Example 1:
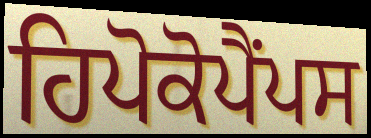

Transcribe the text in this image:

ਹਿਪੋਕੋਪੈਂਪਸ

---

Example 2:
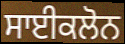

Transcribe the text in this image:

ਸਾਈਕਲੋਨ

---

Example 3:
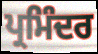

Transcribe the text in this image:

ਪ੍ਰਮਿੰਦਰ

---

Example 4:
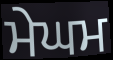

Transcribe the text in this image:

ਮੇਘਮ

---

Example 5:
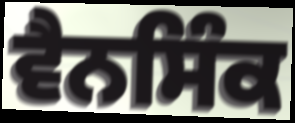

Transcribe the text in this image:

ਵੈਨਸਿੰਕ